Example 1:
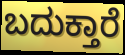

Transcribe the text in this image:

ಬದುಕ್ತಾರೆ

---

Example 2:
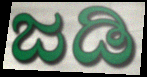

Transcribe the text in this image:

ಜಡಿ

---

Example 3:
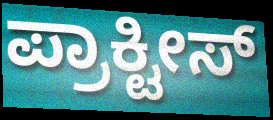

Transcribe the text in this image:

ಪ್ರಾಕ್ಟೀಸ್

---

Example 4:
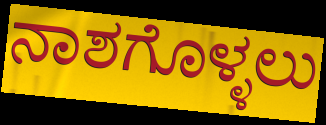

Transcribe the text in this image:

ನಾಶಗೊಳ್ಳಲು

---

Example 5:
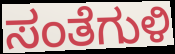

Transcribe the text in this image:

ಸಂತೆಗುಳಿ